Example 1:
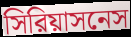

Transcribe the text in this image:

সিরিয়াসনেস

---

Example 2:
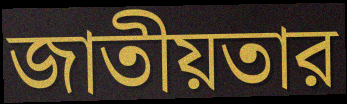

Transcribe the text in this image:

জাতীয়তার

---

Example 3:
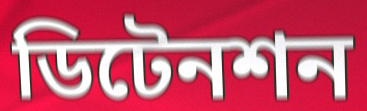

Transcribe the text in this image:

ডিটেনশন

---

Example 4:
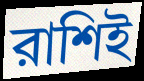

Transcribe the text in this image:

রাশিই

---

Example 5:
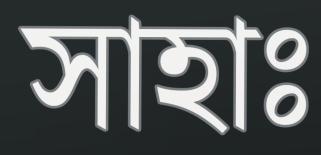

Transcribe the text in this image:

সাহাঃ